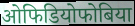
ओफिडियोफोबिया